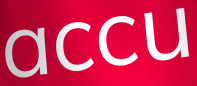
accu